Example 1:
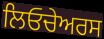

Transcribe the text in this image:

ਲਿਓਚੇਅਰਸ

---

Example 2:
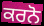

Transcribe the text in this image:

ਕਰਨੋ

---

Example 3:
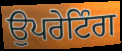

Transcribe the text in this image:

ਉਪਰੇਟਿੰਗ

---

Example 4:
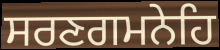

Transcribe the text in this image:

ਸਰਣਗਮਨੇਹਿ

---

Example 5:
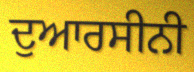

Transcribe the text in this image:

ਦੁਆਰਸੀਨੀ